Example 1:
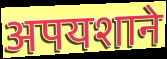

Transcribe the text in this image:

अपयशाने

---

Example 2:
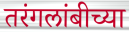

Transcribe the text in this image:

तरंगलांबीच्या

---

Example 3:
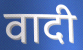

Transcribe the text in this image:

वादी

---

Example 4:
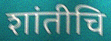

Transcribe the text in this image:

शांतीचि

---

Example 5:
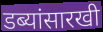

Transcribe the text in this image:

डब्यांसारखी